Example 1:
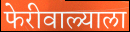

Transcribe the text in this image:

फेरीवाल्याला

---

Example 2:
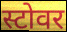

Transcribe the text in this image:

स्टोवर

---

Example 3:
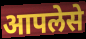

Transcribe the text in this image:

आपलेसे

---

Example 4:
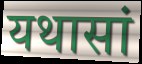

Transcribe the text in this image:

यथासां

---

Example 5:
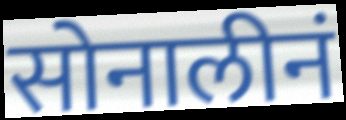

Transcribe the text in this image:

सोनालीनं